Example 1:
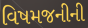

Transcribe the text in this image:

વિષમજનીની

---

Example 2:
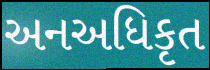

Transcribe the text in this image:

અનઅધિકૃત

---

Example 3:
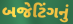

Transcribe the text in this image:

બજેટિંગનું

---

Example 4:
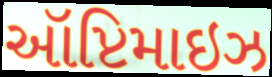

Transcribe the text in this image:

ઑપ્ટિમાઇઝ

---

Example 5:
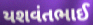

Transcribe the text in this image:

યશવંતભાઈ